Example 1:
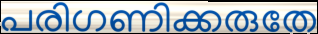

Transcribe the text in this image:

പരിഗണിക്കരുതേ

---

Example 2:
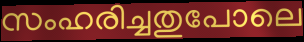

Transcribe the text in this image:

സംഹരിച്ചതുപോലെ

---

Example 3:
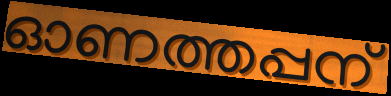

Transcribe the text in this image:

ഓണത്തപ്പന്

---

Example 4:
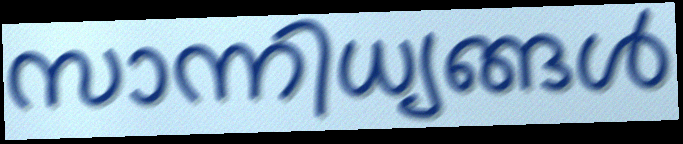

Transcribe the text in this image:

സാന്നിധ്യങ്ങൾ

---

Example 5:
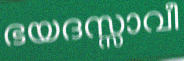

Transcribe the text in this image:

ഭയദസ്സാവീ